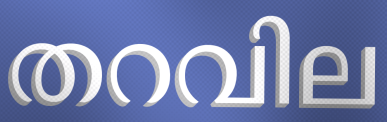
തറവില